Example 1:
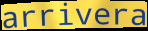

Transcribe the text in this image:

arrivera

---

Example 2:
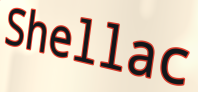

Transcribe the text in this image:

Shellac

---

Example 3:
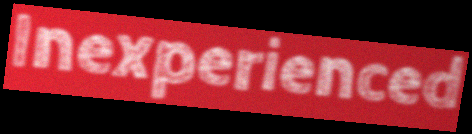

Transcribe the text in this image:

Inexperienced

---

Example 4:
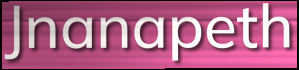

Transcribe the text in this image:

Jnanapeth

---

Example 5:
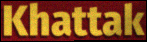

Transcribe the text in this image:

Khattak